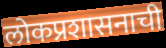
लोकप्रशासनाची